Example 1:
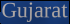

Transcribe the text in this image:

Gujarat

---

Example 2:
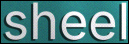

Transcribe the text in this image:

sheel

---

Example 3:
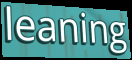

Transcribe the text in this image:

leaning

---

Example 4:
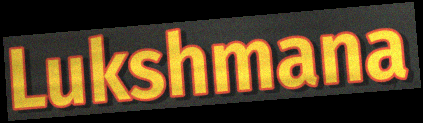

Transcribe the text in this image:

Lukshmana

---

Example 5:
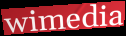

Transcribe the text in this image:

wimedia